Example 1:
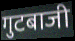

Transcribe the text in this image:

गुटबाजी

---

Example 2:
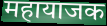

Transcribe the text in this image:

महायाजक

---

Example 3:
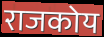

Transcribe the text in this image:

राजकोय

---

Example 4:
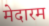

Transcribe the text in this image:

मेदारम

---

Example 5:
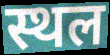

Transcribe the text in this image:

स्थल